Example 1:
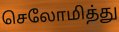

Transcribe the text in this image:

செலோமித்து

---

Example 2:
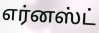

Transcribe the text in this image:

எர்னஸ்ட்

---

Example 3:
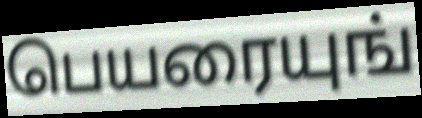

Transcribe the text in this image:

பெயரையுங்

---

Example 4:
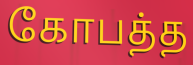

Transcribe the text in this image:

கோபத்த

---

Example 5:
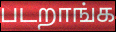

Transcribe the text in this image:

படறாங்க